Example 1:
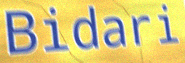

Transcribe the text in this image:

Bidari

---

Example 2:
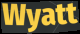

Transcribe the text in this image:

Wyatt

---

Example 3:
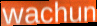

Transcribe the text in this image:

wachun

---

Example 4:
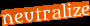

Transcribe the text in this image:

neutralize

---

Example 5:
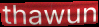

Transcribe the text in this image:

thawun